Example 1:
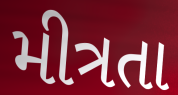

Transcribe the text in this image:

મીત્રતા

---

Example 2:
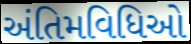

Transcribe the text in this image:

અંતિમવિધિઓ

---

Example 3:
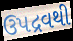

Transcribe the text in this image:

ઉપદ્રવથી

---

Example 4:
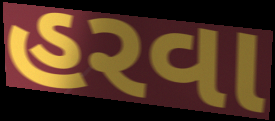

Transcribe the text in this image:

હરવા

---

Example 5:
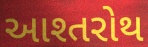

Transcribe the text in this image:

આશ્તરોથ